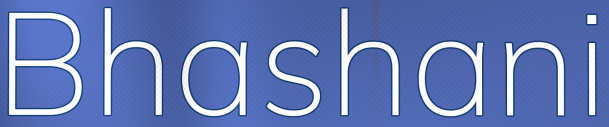
Bhashani